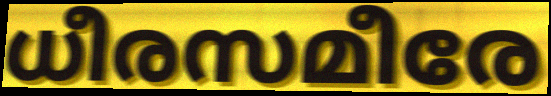
ധീരസമീരേ